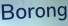
Borong